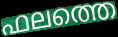
ഫലത്തെ